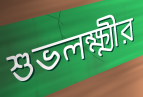
শুভলক্ষ্মীর